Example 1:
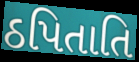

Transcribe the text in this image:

ઠપિતાતિ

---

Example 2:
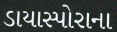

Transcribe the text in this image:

ડાયાસ્પોરાના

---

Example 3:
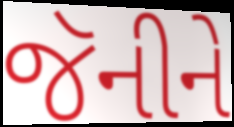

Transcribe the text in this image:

જૅનીને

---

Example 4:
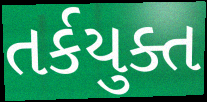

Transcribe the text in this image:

તર્કયુક્ત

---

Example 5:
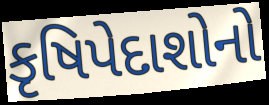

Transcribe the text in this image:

કૃષિપેદાશોનો